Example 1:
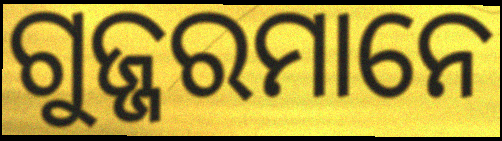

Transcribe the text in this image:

ଗୁଜ୍ଜରମାନେ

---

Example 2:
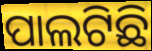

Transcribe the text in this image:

ପାଲଟିଛି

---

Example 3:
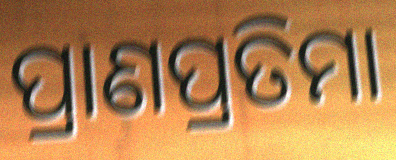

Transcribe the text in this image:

ପ୍ରାଣପ୍ରତିମା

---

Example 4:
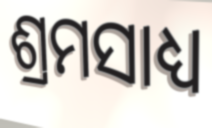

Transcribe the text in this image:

ଶ୍ରମସାଧ୍ୟ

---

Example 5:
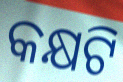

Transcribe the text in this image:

କକ୍ଷଟି